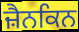
ਜ਼ੈਨਕਿਨ